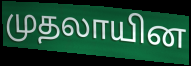
முதலாயின